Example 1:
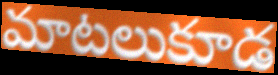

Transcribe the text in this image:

మాటలుకూడ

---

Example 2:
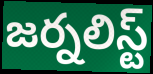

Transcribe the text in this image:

జర్నలిస్ట్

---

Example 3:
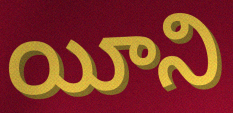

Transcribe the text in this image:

యీని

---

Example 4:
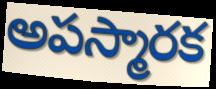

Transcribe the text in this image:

అపస్మారక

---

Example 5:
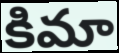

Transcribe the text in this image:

కిమా